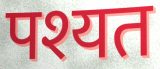
पश्यत